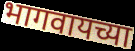
भागवायच्या